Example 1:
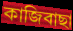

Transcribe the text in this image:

কাজিবাছা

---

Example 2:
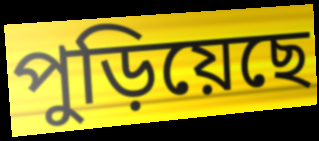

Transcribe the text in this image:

পুড়িয়েছে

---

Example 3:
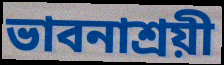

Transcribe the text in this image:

ভাবনাশ্রয়ী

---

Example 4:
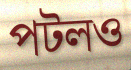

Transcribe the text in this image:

পটলও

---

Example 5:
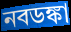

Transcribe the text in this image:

নবডঙ্কা